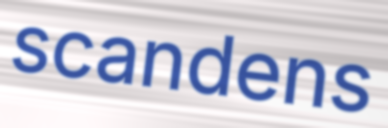
scandens